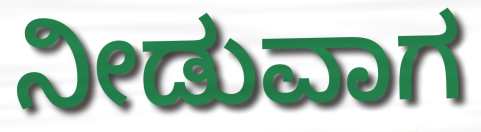
ನೀಡುವಾಗ